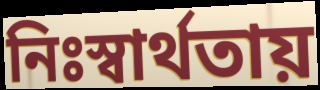
নিঃস্বার্থতায়